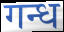
गन्ध